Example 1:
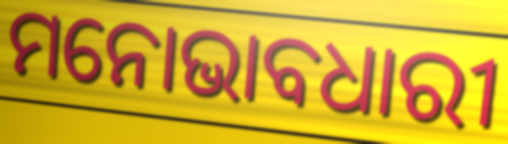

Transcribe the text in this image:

ମନୋଭାବଧାରୀ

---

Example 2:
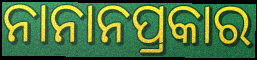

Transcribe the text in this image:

ନାନାନପ୍ରକାର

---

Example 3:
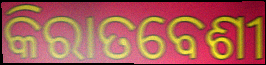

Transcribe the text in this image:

କିରାତବେଶୀ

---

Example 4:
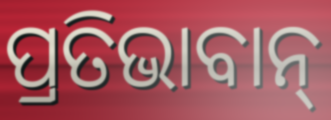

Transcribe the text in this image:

ପ୍ରତିଭାବାନ୍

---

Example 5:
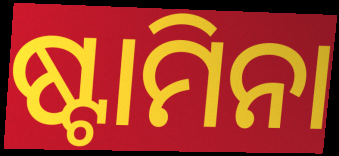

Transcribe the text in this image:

ଷ୍ଟାମିନା